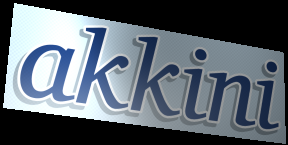
akkini